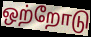
ஒற்றோடு